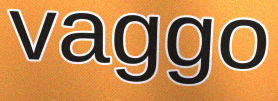
vaggo